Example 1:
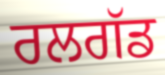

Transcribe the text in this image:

ਰਲਗੱਡ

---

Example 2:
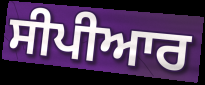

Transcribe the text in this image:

ਸੀਪੀਆਰ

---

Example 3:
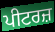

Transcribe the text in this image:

ਪੀਟਰਜ਼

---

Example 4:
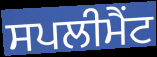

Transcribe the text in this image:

ਸਪਲੀਮੈਂਟ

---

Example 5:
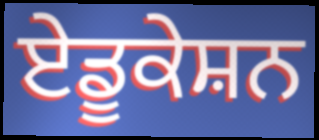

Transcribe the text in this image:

ਏਡੂਕੇਸ਼ਨ